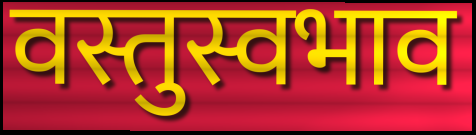
वस्तुस्वभाव